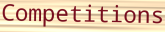
Competitions